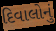
દિવાલોનું